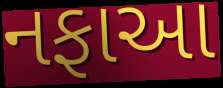
નફાઆ